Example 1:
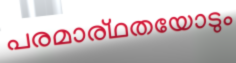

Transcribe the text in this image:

പരമാര്ഥതയോടും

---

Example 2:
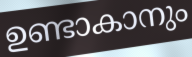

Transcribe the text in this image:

ഉണ്ടാകാനും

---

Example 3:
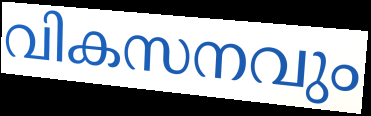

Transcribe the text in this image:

വികസനവും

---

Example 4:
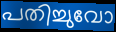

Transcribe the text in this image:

പതിച്ചുവോ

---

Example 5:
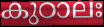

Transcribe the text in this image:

കുഠാലഃ